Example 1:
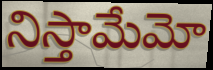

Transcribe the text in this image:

నిస్తామేమో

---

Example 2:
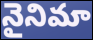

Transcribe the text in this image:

నైనిమా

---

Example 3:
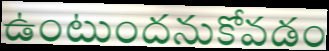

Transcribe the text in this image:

ఉంటుందనుకోవడం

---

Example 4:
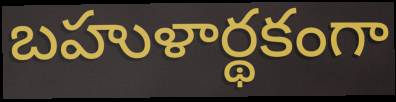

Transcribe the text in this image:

బహుళార్థకంగా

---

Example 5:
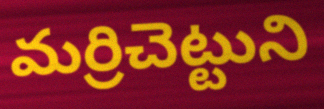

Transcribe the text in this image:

మర్రిచెట్టుని